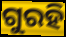
ଗୁରହି